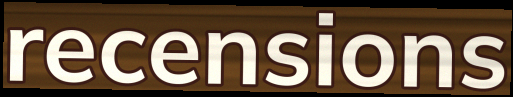
recensions